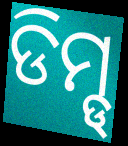
ଡିମ୍ଡ୍